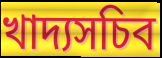
খাদ্যসচিব